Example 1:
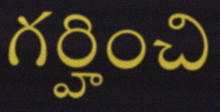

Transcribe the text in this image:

గర్హించి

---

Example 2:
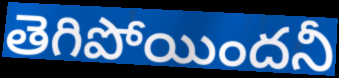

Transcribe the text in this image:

తెగిపోయిందనీ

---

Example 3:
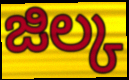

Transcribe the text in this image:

జిల్క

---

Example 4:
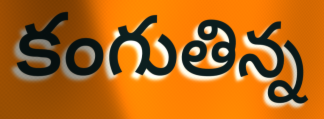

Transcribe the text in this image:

కంగుతిన్న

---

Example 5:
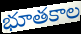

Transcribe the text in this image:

భూతకాల